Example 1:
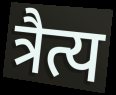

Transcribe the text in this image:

त्रैत्य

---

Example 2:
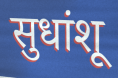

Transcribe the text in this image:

सुधांशू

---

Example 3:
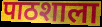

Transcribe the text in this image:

पाठशाला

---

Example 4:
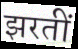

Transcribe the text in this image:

झरतीं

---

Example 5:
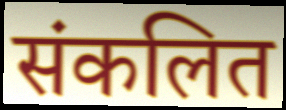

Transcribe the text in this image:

संकलित